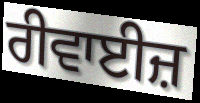
ਰੀਵਾਈਜ਼